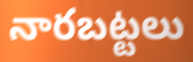
నారబట్టలు